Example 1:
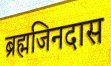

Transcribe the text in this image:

ब्रह्मजिनदास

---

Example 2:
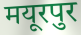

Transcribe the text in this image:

मयूरपुर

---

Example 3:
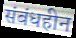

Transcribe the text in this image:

संबंधहीन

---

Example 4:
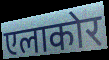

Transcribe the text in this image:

एलाकोर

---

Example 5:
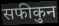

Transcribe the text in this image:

सफीकुन